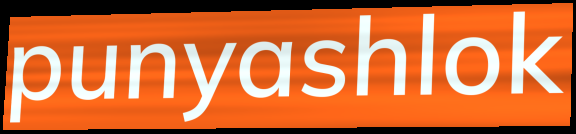
punyashlok